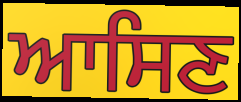
ਆਸਿਣ